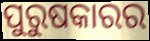
ପୁରୁଷକାରର